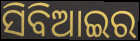
ସିବିଆଇର